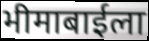
भीमाबाईला